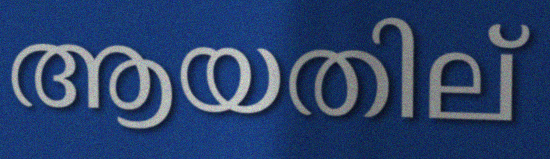
ആയതില്